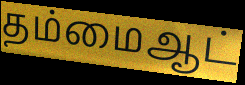
தம்மைஆட்